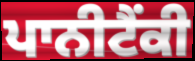
ਪਾਨੀਟੈਂਕੀ